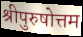
श्रीपुरुषोत्तम